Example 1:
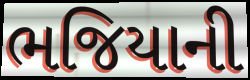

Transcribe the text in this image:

ભજિયાની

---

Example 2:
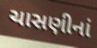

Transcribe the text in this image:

ચાસણીનાં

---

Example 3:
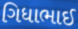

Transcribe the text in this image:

ગિધાભાઈ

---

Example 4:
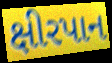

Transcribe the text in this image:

ક્ષીરપાન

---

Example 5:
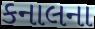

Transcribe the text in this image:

કનાલના